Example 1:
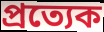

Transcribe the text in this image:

প্ৰত্যেক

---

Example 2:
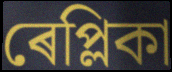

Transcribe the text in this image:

ৰেপ্লিকা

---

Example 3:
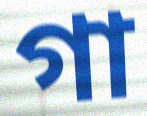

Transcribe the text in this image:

গা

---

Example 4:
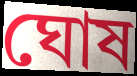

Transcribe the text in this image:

ঘোষ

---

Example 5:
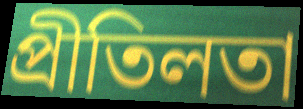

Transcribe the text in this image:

প্ৰীতিলতা